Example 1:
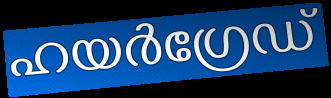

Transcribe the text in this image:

ഹയർഗ്രേഡ്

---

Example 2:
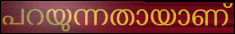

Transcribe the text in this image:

പറയുന്നതായാണ്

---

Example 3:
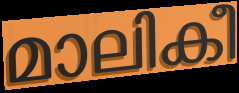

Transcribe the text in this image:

മാലികീ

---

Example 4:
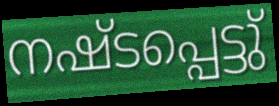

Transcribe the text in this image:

നഷ്ടപ്പെട്ടു്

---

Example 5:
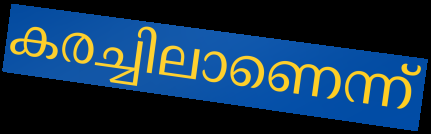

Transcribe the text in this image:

കരച്ചിലാണെന്ന്